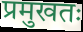
प्रमुखतः